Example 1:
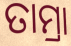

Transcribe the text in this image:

ତାମ୍ରା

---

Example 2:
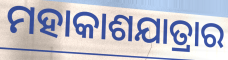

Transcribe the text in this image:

ମହାକାଶଯାତ୍ରାର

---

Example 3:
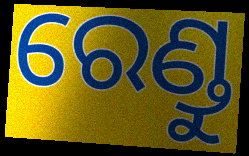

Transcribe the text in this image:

ରେଣ୍ଡୁ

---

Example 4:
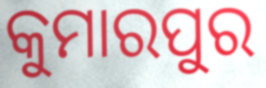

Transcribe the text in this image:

କୁମାରପୁର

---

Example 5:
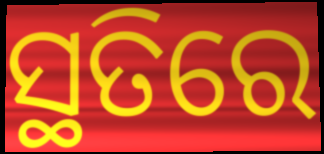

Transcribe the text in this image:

ସ୍ଥତିରେ